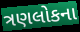
ત્રણલોકના